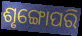
ଶୃଙ୍ଗୋପରି